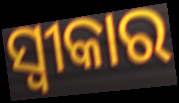
ସ୍ବୀକାର